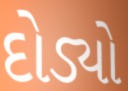
દોડ્યો